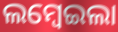
ଲମ୍ବେଇଲା